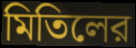
মিতিলের